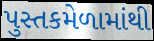
પુસ્તકમેળામાંથી